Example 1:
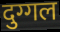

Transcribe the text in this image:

दुग्गल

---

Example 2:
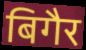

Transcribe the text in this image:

बिगैर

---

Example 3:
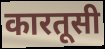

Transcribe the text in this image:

कारतूसी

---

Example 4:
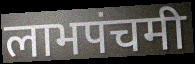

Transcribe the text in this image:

लाभपंचमी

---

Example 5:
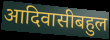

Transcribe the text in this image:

आदिवासीबहुल